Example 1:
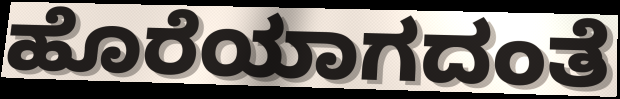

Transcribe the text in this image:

ಹೊರೆಯಾಗದಂತೆ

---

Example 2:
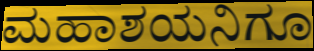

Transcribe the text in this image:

ಮಹಾಶಯನಿಗೂ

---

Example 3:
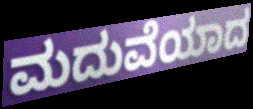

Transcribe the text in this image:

ಮದುವೆಯಾದ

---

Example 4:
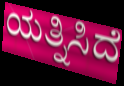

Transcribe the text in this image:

ಯತ್ನಿಸಿದೆ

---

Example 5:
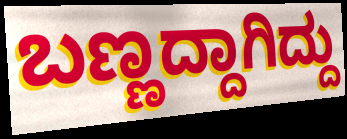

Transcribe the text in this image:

ಬಣ್ಣದ್ದಾಗಿದ್ದು